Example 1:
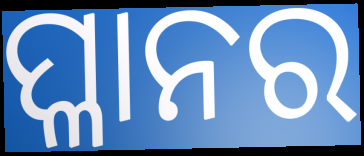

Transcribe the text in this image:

ପ୍ଳାନର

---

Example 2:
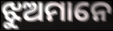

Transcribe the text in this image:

ଝୁଅମାନେ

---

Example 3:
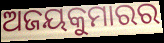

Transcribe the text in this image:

ଅଜୟକୁମାରର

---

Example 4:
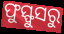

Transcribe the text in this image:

ଫୁସ୍ଫୁସରୁ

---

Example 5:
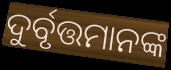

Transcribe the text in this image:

ଦୁର୍ବୃତ୍ତମାନଙ୍କ